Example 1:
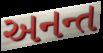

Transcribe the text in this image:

અનન્ત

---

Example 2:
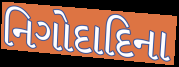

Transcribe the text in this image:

નિગોદાદિના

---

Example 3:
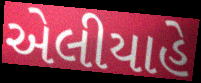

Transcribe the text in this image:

એલીયાહે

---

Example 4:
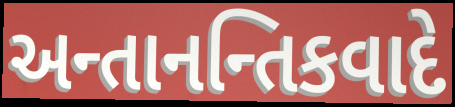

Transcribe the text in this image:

અન્તાનન્તિકવાદે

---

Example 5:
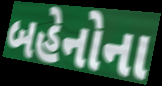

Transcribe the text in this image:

બહેનોના